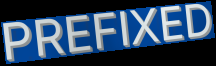
PREFIXED